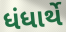
ધંધાર્થે